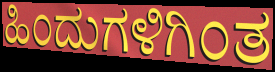
ಹಿಂದುಗಳಿಗಿಂತ